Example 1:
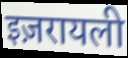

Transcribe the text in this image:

इज़रायली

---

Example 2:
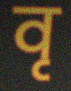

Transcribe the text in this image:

वृ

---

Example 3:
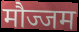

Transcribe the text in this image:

मौज्जम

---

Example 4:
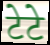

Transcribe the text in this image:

टेटे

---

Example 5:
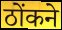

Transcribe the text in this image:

ठोंकने